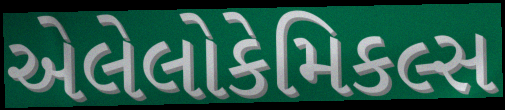
એલેલોકેમિકલ્સ